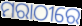
ମରାଠୀରେ